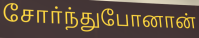
சோர்ந்துபோனான்